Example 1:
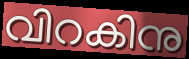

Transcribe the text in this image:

വിറകിനു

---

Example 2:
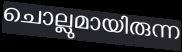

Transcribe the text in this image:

ചൊല്ലുമായിരുന്ന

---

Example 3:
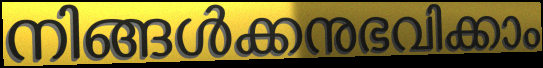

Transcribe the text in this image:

നിങ്ങൾക്കനുഭവിക്കാം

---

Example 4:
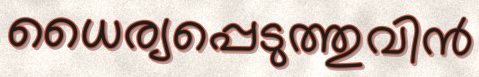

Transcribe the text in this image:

ധൈര്യപ്പെടുത്തുവിൻ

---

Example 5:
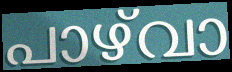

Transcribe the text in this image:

പാഴ്‌വാ